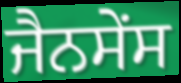
ਜੈਨਸੇਂਸ